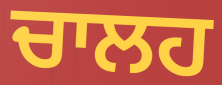
ਚਾਲਹ